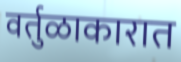
वर्तुळाकारात